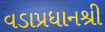
વડાપ્રધાનશ્રી